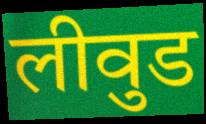
लीवुड